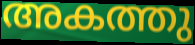
അകത്തു